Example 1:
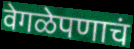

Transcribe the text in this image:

वेगळेपणाचं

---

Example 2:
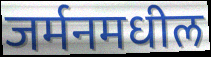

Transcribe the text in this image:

जर्मनमधील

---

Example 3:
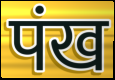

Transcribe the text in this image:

पंख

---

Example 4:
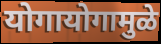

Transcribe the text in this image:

योगायोगामुळे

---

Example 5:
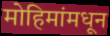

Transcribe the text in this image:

मोहिमांमधून